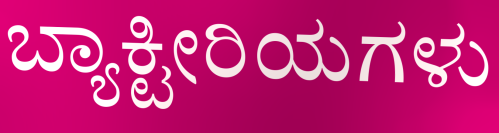
ಬ್ಯಾಕ್ಟೀರಿಯಗಳು